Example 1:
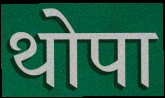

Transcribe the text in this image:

थोपा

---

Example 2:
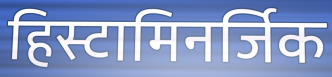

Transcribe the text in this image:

हिस्टामिनर्जिक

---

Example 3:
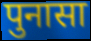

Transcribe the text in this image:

पुनासा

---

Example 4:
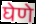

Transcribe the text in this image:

घेणे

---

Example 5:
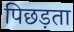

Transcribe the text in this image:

पिछड़ता